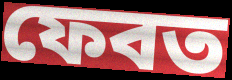
ফেবত